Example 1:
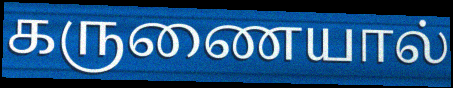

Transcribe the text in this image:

கருணையால்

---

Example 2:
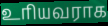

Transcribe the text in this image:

உரியவராக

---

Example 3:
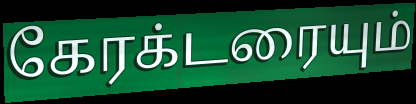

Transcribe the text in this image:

கேரக்டரையும்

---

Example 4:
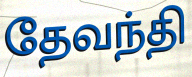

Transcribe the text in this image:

தேவந்தி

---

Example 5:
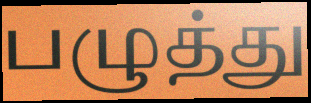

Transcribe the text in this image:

பழுத்து